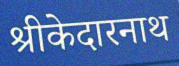
श्रीकेदारनाथ